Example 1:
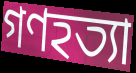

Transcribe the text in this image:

গণহত্যা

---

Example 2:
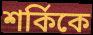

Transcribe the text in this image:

শর্কিকে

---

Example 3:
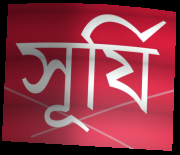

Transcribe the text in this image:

সূর্যি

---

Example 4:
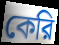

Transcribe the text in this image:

কেরি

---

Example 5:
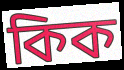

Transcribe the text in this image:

কিক